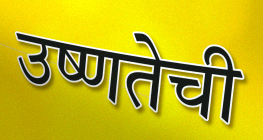
उष्णतेची